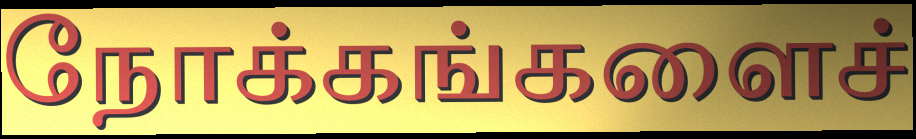
நோக்கங்களைச்